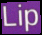
Lip